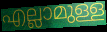
എല്ലാമുള്ള